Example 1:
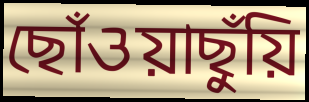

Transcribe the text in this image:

ছোঁওয়াছুঁয়ি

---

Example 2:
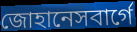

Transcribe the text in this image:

জোহানেসবার্গে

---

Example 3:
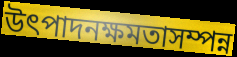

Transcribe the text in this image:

উৎপাদনক্ষমতাসম্পন্ন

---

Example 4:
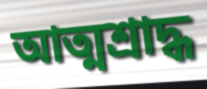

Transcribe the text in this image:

আত্মশ্রাদ্ধ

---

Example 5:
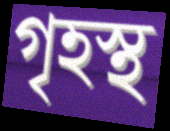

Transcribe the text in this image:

গৃহস্থ